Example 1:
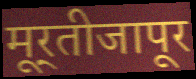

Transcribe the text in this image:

मूर्तीजापूर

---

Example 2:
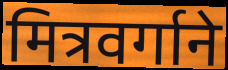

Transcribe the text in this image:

मित्रवर्गाने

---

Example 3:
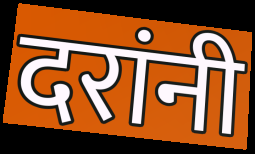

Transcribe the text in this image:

दरांनी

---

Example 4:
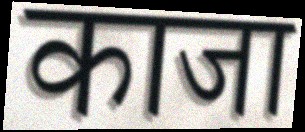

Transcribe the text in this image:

काजा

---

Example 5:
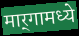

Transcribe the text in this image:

मार्गामध्ये